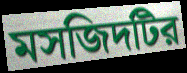
মসজিদটির